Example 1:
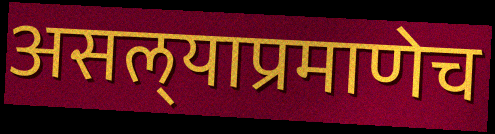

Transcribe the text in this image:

असल्याप्रमाणेच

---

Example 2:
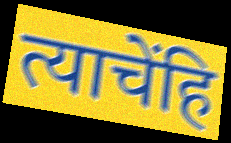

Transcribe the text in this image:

त्याचेंहि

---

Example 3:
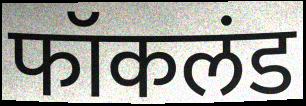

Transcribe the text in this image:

फॉकलंड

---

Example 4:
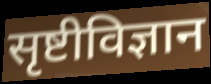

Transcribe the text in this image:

सृष्टीविज्ञान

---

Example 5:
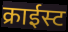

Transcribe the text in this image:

क्राईस्ट